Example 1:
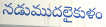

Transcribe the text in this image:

నడుముదలైకుళం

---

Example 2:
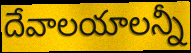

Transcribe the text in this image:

దేవాలయాలన్నీ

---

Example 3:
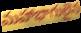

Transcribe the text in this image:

మహాభాగులైన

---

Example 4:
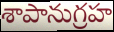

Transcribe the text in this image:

శాపానుగ్రహ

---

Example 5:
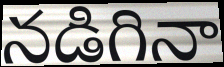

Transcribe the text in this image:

నడిగినా